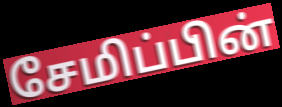
சேமிப்பின்